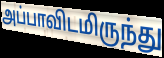
அப்பாவிடமிருந்து